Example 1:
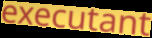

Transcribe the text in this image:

executant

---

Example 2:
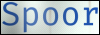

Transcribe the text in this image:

Spoor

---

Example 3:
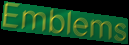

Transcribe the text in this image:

Emblems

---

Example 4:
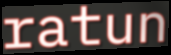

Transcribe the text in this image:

ratun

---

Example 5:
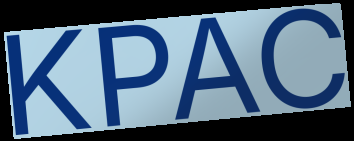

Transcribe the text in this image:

KPAC